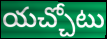
యచ్చోటు